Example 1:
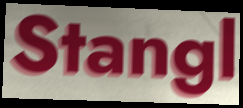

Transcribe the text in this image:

Stangl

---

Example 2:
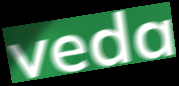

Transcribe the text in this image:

veda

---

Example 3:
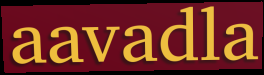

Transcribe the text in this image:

aavadla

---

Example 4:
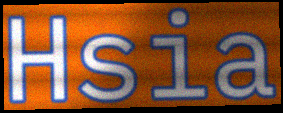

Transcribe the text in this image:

Hsia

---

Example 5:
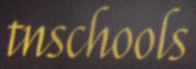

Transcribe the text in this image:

tnschools